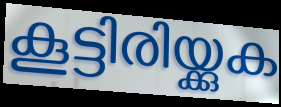
കൂട്ടിരിയ്ക്കുക